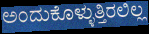
ಅಂದುಕೊಳ್ಳುತ್ತಿರಲಿಲ್ಲ